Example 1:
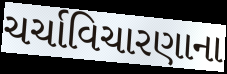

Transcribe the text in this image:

ચર્ચાવિચારણાના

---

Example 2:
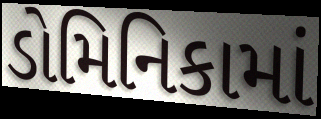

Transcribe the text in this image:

ડોમિનિકામાં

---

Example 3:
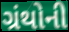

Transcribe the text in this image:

ગ્રંથોની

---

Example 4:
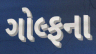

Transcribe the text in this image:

ગોલ્ફના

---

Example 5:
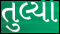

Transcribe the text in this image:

તુલ્યા